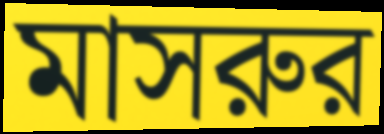
মাসরুর